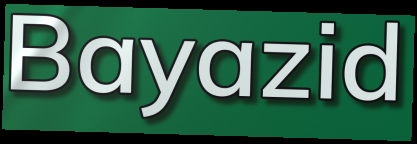
Bayazid